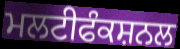
ਮਲਟੀਫੰਕਸ਼ਨਲ